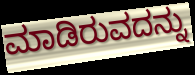
ಮಾಡಿರುವದನ್ನು